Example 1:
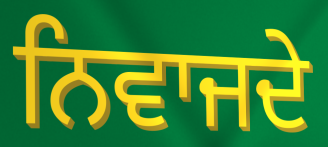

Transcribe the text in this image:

ਨਿਵਾਜਦੇ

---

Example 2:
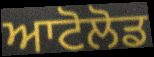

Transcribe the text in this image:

ਆਟੋਲੋਡ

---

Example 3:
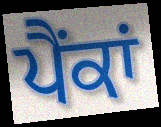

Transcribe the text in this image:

ਪੈਂਕਾਂ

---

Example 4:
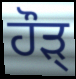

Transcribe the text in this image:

ਹੌੜ੍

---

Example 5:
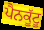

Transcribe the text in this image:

ਪੈਨਕੂੱਟੂ